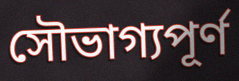
সৌভাগ্যপূর্ণ